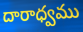
దారాధ్వము